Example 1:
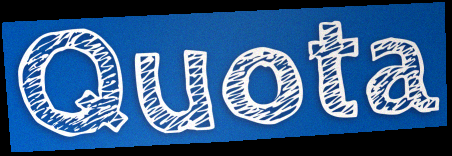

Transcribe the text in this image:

Quota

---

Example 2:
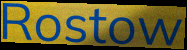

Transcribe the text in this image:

Rostow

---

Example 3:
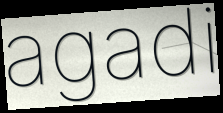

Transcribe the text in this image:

agadi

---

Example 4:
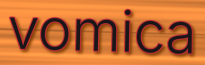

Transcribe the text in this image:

vomica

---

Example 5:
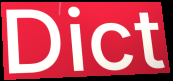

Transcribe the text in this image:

Dict